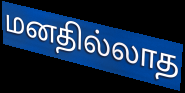
மனதில்லாத